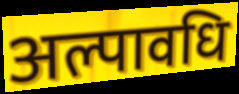
अल्पावधि